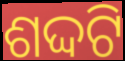
ଶଦ୍ଦଟି